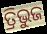
ତ୍ରିଭୁଜ